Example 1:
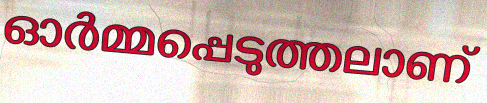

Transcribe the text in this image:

ഓർമ്മപ്പെടുത്തലാണ്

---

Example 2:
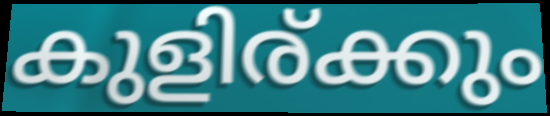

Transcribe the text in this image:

കുളിര്ക്കും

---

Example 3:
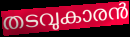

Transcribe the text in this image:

തടവുകാരൻ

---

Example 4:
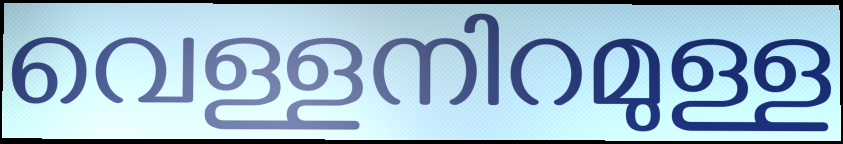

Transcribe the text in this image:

വെള്ളനിറമുള്ള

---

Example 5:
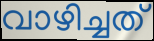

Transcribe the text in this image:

വാഴിച്ചത്